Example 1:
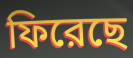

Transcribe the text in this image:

ফিরেছে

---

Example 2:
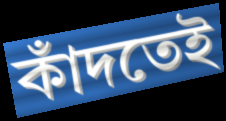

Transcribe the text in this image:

কাঁদতেই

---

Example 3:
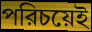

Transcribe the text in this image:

পরিচয়েই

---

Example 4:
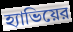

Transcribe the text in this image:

হ্যাভিয়ের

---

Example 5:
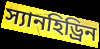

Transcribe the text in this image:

স্যানহিড্রিন